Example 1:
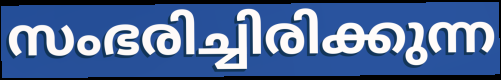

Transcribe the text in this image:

സംഭരിച്ചിരിക്കുന്ന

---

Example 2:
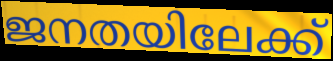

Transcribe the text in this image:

ജനതയിലേക്ക്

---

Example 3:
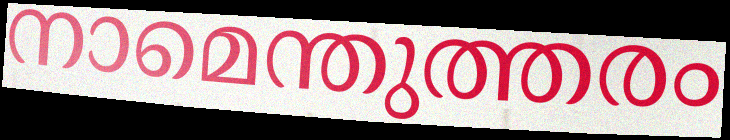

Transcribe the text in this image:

നാമെന്തുത്തരം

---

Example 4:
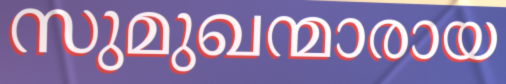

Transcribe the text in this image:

സുമുഖന്മാരായ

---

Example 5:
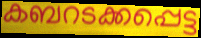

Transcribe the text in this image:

കബറടക്കപ്പെട്ട